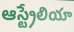
ఆస్ట్రేలియా